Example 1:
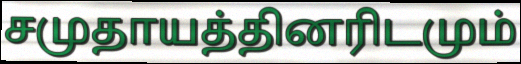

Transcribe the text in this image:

சமுதாயத்தினரிடமும்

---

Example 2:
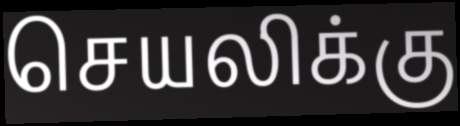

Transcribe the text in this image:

செயலிக்கு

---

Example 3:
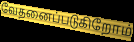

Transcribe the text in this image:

வேதனைப்படுகிறோம்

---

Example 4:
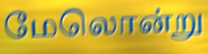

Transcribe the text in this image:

மேலொன்று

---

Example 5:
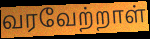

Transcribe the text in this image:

வரவேற்றாள்